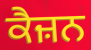
ਕੈਜ਼ਨ